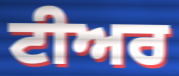
ਟੀਅਰ